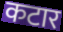
कटार